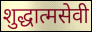
शुद्धात्मसेवी